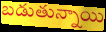
బడుతున్నాయి